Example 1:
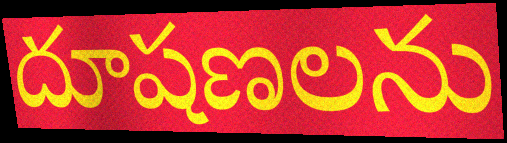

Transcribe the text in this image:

దూషణలను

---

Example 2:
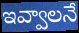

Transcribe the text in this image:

ఇవ్వాలనే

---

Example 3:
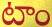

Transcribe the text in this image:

టాం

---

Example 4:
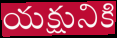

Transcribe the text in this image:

యక్షునికి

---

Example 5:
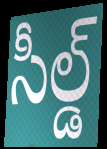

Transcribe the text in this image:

సీల్డ్